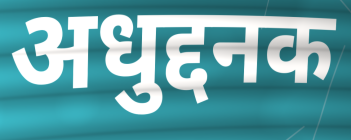
अधुद्दनक